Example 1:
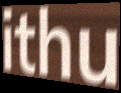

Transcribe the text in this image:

ithu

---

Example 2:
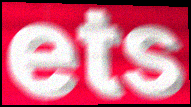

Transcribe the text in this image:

ets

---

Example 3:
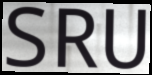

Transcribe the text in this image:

SRU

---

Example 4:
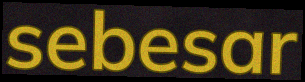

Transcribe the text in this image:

sebesar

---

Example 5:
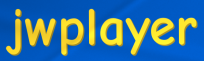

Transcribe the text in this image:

jwplayer